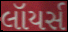
લૉયર્સ